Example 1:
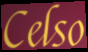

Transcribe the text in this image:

Celso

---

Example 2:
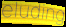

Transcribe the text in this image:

eluding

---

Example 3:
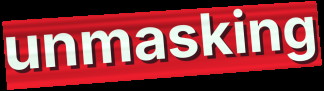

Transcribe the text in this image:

unmasking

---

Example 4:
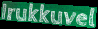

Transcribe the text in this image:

Irukkuvel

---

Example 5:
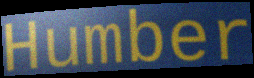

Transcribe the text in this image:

Humber